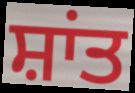
ਸ਼ਾਂਤ